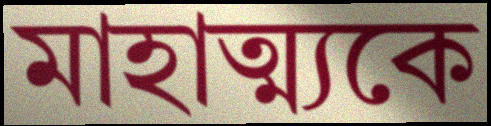
মাহাত্ম্যকে